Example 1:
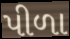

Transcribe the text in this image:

પીળા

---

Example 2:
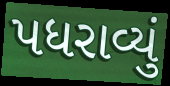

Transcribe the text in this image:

પધરાવ્યું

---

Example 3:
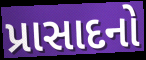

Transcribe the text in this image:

પ્રાસાદનો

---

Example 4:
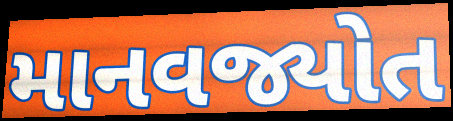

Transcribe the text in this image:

માનવજ્યોત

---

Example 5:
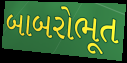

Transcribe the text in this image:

બાબરોભૂત